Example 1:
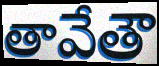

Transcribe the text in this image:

తావేతౌ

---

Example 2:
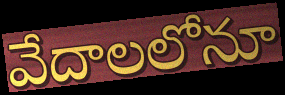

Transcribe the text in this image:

వేదాలలోనూ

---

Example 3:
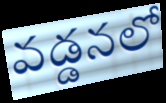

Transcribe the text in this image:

వడ్డనలో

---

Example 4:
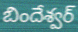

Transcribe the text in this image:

బిందేశ్వర్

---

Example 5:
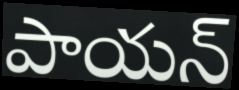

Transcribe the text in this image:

పాయన్